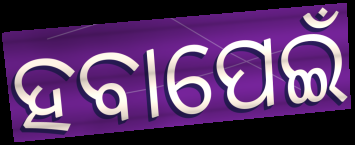
ହବାପେଇଁ